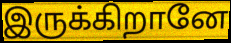
இருக்கிறானே